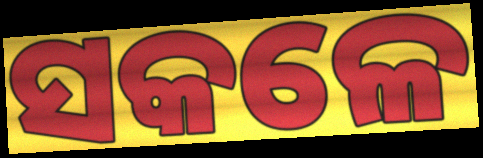
ସକଳେ